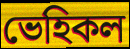
ভেহিকল